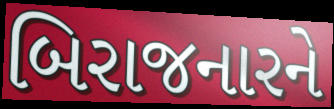
બિરાજનારને